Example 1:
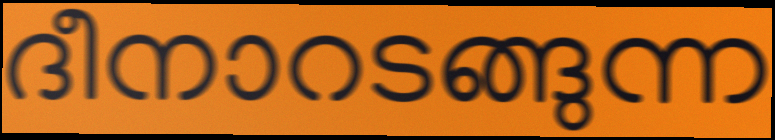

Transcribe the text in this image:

ദീനാറടങ്ങുന്ന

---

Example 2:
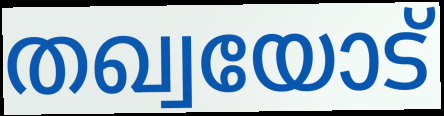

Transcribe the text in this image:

തഖ്വയോട്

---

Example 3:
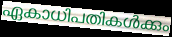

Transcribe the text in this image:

ഏകാധിപതികൾക്കും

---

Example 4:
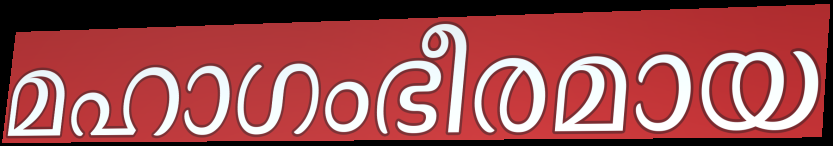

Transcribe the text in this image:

മഹാഗംഭീരമായ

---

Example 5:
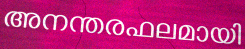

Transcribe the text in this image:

അനന്തരഫലമായി